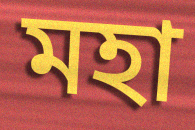
মহা